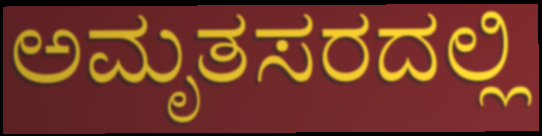
ಅಮೃತಸರದಲ್ಲಿ